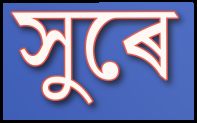
সুৰে